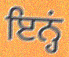
ਇਨ੍ਹਂ